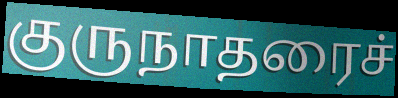
குருநாதரைச்